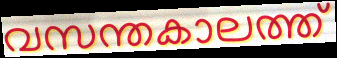
വസന്തകാലത്ത്